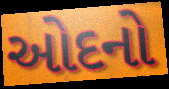
ઓદનો